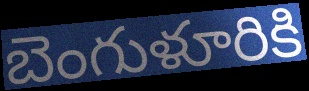
బెంగుళూరికి